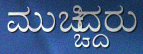
ಮುಚ್ಚಿದ್ದರು